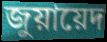
জুয়ায়েদ